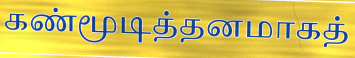
கண்மூடித்தனமாகத்